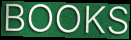
BOOKS